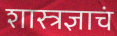
शास्त्रज्ञाचं